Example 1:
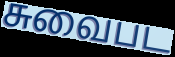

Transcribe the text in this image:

சுவைபட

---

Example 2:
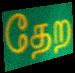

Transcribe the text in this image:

தேற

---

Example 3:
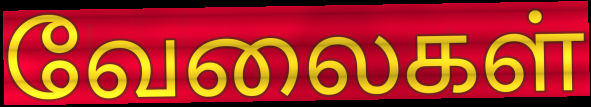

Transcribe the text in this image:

வேலைகள்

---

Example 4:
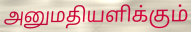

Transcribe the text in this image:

அனுமதியளிக்கும்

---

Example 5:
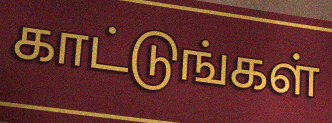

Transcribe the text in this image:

காட்டுங்கள்